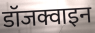
डॉजक्वाइन